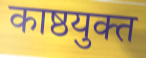
काष्ठयुक्त